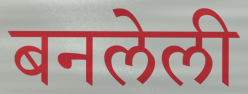
बनलेली